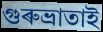
গুৰুভ্ৰাতাই